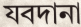
যবদানা